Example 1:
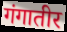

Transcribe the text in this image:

गंगातीर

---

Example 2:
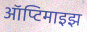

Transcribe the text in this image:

ऑप्टिमाइझ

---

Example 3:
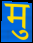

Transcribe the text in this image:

मु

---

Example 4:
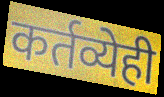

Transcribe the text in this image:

कर्तव्येही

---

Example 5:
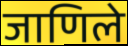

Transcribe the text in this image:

जाणिले